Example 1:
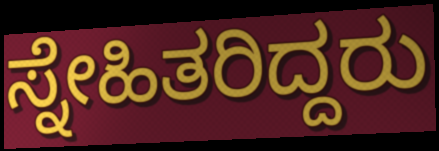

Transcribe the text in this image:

ಸ್ನೇಹಿತರಿದ್ದರು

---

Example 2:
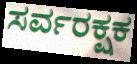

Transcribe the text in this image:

ಸರ್ವರಕ್ಷಕ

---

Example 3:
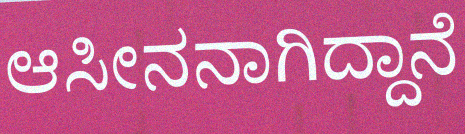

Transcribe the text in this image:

ಆಸೀನನಾಗಿದ್ದಾನೆ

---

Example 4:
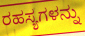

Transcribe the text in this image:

ರಹಸ್ಯಗಳನ್ನು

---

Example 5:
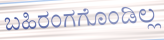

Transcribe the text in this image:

ಬಹಿರಂಗಗೊಂಡಿಲ್ಲ